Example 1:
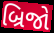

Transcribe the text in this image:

બ્રિજો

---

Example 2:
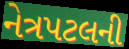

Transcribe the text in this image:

નેત્રપટલની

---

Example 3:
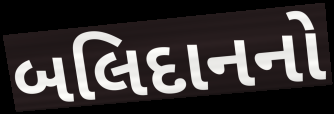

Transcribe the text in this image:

બલિદાનનો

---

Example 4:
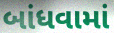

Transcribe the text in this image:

બાંધવામાં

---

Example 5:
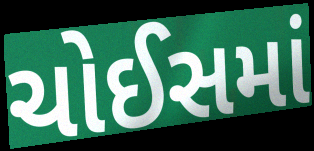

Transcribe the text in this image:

ચોઈસમાં